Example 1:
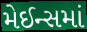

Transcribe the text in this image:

મેઈન્સમાં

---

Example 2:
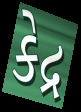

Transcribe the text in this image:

કેદ્ર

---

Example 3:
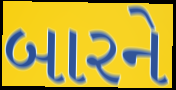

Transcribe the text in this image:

બારને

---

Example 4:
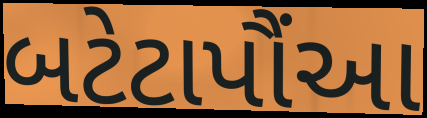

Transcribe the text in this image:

બટેટાપૌંઆ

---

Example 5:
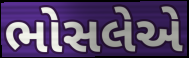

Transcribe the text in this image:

ભોસલેએ